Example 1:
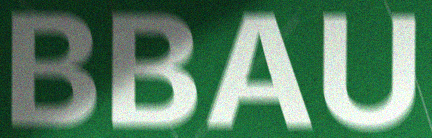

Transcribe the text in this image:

BBAU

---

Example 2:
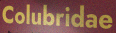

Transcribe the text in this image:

Colubridae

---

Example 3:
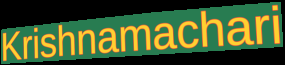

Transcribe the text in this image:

Krishnamachari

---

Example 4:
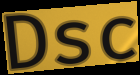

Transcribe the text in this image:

Dsc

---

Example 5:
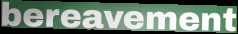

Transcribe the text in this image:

bereavement